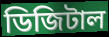
ডিজিটাল